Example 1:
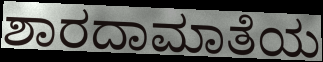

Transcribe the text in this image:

ಶಾರದಾಮಾತೆಯ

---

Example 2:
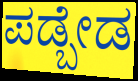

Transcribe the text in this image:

ಪಡ್ಬೇಡ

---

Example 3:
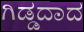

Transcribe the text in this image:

ಗಿಡ್ಡದಾದ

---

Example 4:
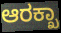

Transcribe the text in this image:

ಆರಕ್ಖಾ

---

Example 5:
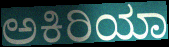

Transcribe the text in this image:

ಅಕಿರಿಯಾ